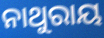
ନାଥୁରାୟ